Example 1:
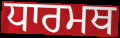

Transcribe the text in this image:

ਧਾਰਮਥ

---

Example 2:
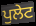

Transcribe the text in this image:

ਪੁਲੇਟ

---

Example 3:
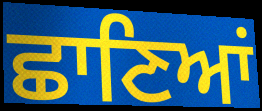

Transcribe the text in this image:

ਛਾਣਿਆਂ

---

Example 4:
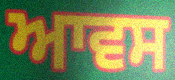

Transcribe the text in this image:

ਆਵਸ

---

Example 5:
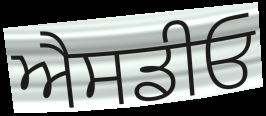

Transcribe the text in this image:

ਐਸਡੀਓ